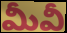
మీవీ